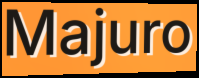
Majuro